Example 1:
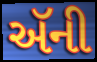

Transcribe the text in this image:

ઍની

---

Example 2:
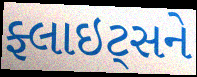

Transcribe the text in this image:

ફ્લાઇટ્સને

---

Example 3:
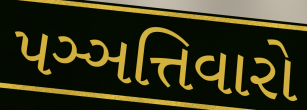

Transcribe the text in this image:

પઞ્ઞત્તિવારો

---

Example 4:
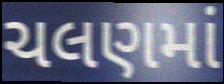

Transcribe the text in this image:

ચલણમાં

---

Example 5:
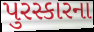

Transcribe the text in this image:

પુરસ્કારના